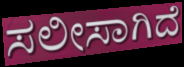
ಸಲೀಸಾಗಿದೆ